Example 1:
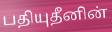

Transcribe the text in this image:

பதியுதீனின்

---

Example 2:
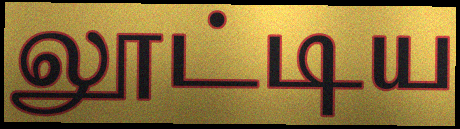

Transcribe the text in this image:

லூட்டிய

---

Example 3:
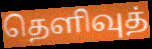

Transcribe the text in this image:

தெளிவுத்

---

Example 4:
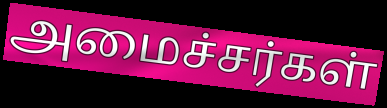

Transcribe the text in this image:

அமைச்சர்கள்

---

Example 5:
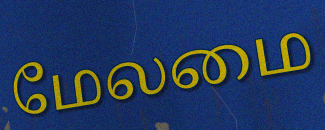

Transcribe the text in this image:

மேலமை